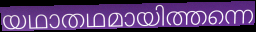
യഥാതഥമായിത്തന്നെ